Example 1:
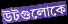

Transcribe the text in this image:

উটগুলোকে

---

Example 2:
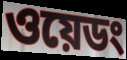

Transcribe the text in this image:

ওয়েডং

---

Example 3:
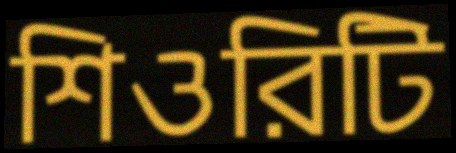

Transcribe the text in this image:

শিওরিটি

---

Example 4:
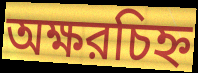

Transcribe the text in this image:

অক্ষরচিহ্ন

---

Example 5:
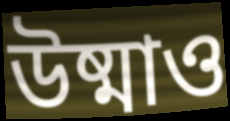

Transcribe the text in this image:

উষ্মাও